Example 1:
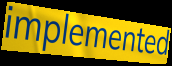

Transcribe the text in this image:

implemented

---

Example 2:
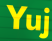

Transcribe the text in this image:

Yuj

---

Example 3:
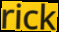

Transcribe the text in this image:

rick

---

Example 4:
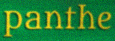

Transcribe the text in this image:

panthe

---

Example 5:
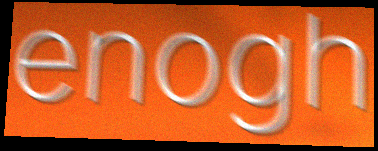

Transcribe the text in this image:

enogh